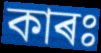
কাৰঃ